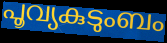
പൂവ്യകുടുംബം